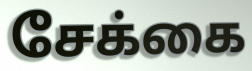
சேக்கை